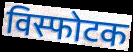
विस्फोटक